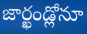
జార్ఖండ్లోనూ